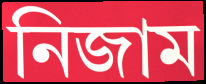
নিজাম